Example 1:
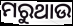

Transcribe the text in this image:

ମରୁଥାଉ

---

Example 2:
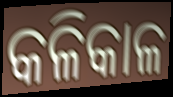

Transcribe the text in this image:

କଳିକାଳ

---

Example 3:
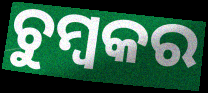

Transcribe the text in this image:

ଚୁମ୍ବକର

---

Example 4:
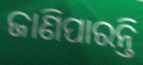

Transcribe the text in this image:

ଜାଣିପାରନ୍ତି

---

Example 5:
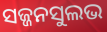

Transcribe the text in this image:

ସଜ୍ଜନସୁଲଭ